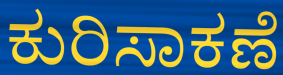
ಕುರಿಸಾಕಣೆ